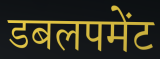
डबलपमेंट